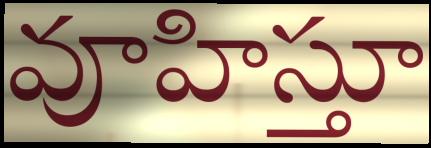
వూహిస్తూ